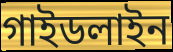
গাইডলাইন